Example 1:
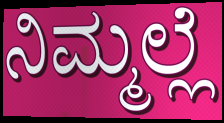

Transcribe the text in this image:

ನಿಮ್ಮಲ್ಲೆ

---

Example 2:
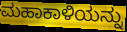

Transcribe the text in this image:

ಮಹಾಕಾಳಿಯನ್ನು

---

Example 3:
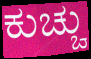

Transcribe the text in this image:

ಕುಚ್ಚು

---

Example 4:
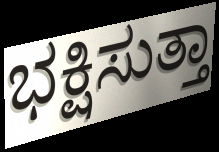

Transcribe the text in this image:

ಭಕ್ಷಿಸುತ್ತಾ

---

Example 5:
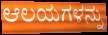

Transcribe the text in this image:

ಆಲಯಗಳನ್ನು